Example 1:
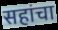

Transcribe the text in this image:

सहांचा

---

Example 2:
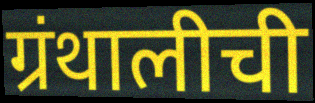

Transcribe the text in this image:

ग्रंथालीची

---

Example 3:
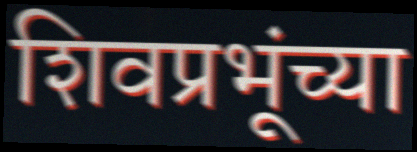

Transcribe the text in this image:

शिवप्रभूंच्या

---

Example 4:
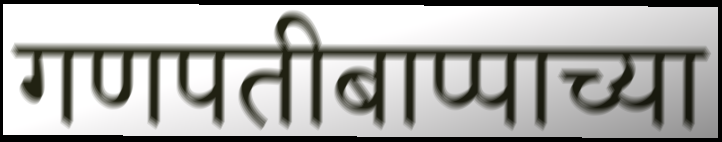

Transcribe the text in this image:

गणपतीबाप्पाच्या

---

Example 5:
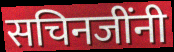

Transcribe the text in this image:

सचिनजींनी